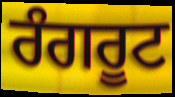
ਰੰਗਰੂਟ